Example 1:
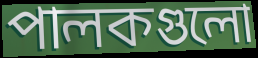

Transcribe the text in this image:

পালকগুলো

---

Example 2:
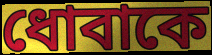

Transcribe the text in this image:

ধোবাকে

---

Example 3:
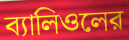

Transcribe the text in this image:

ব্যালিওলের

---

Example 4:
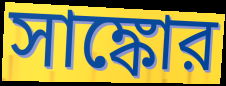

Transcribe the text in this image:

সাঙ্কোর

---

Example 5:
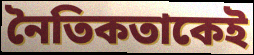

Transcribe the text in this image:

নৈতিকতাকেই